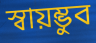
স্বায়ম্ভুব